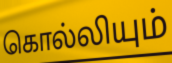
கொல்லியும்